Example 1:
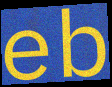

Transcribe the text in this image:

eb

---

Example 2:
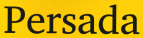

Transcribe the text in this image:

Persada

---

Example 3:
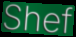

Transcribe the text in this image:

Shef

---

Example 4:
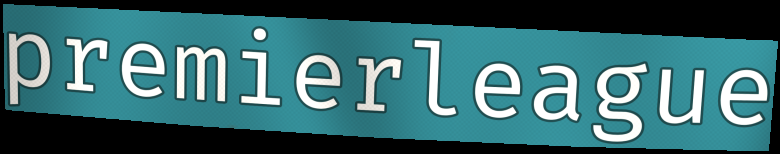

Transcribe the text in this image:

premierleague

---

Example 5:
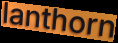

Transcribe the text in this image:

lanthorn